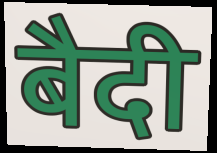
बैदी